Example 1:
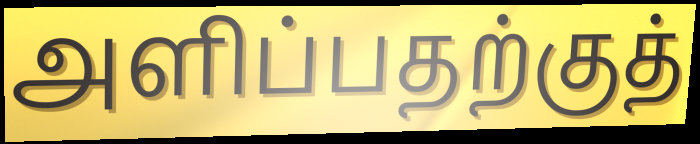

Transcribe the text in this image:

அளிப்பதற்குத்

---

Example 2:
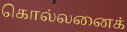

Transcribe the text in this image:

கொல்லனைக்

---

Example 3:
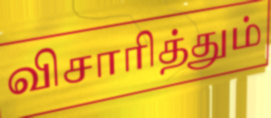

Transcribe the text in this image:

விசாரித்தும்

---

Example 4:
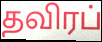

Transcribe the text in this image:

தவிரப்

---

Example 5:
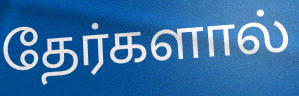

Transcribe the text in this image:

தேர்களால்